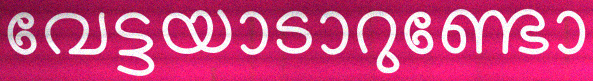
വേട്ടയാടാറുണ്ടോ